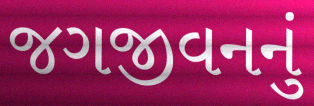
જગજીવનનું